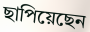
ছাপিয়েছেন